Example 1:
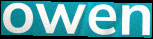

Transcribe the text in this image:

owen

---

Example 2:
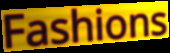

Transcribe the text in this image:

Fashions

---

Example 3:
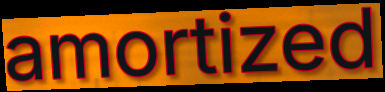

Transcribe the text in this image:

amortized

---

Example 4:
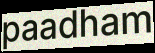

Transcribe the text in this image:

paadham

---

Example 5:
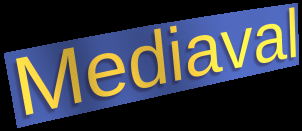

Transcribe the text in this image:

Mediaval